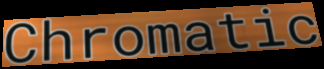
Chromatic